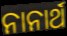
ନାନାର୍ଥ